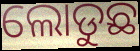
ଲୋଡୁଛ